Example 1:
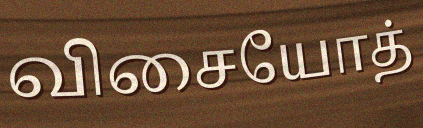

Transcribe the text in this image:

விசையோத்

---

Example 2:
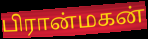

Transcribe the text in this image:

பிரான்மகன்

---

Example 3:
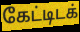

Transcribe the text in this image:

கேட்டிடக்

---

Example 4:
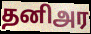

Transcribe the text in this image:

தனிஅர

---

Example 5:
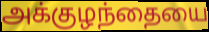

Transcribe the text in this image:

அக்குழந்தையை